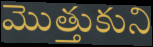
మొత్తుకుని